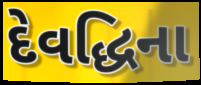
દેવદ્ધિના